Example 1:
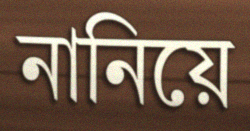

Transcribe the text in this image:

নানিয়ে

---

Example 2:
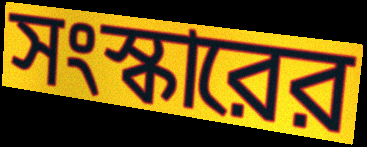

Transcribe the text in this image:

সংস্কারের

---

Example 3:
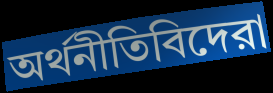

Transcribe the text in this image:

অর্থনীতিবিদেরা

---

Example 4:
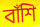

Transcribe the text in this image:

বাঁশি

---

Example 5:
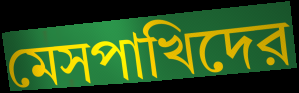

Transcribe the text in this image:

মেসপাখিদের